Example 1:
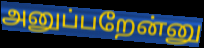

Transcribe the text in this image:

அனுப்பறேன்னு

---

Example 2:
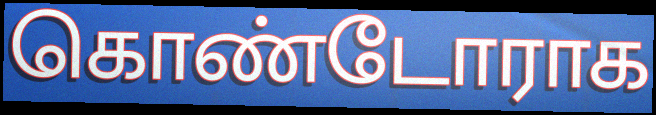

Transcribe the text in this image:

கொண்டோராக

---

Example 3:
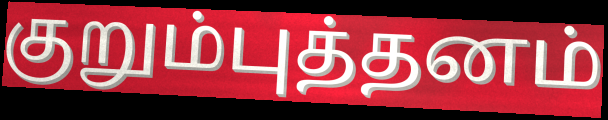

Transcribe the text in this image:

குறும்புத்தனம்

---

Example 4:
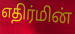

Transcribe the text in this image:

எதிர்மின்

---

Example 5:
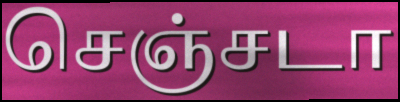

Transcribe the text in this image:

செஞ்சடா